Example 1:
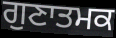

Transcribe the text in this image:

ਗੁਣਾਤਮਕ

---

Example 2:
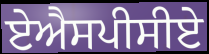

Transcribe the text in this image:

ਏਐਸਪੀਸੀਏ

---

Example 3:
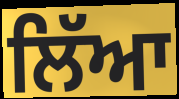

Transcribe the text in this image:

ਲਿੱਆ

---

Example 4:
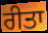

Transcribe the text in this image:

ਰੀਤਾ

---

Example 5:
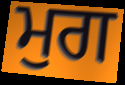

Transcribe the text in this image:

ਮੁਗ